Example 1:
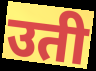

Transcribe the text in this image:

उती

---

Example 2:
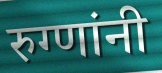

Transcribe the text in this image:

रुग्णांनी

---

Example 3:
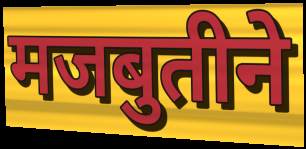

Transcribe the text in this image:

मजबुतीने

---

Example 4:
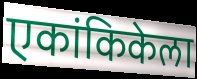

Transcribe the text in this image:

एकांकिकेला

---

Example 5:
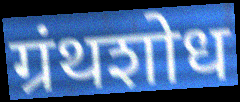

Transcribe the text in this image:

ग्रंथशोध